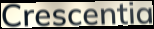
Crescentia